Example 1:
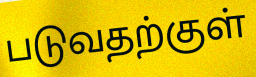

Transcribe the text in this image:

படுவதற்குள்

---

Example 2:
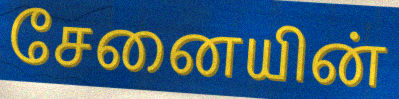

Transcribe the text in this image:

சேனையின்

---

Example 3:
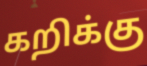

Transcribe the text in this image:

கறிக்கு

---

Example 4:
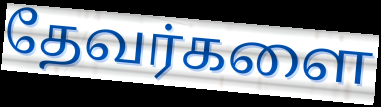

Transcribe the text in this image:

தேவர்களை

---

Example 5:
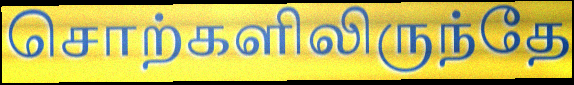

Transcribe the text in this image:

சொற்களிலிருந்தே